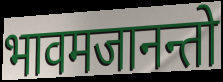
भावमजानन्तो